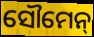
ସୌମେନ୍